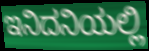
ಇನಿದನಿಯಲ್ಲಿ